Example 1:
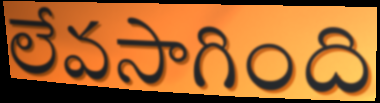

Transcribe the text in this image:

లేవసాగింది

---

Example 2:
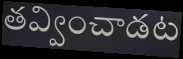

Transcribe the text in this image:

తవ్వించాడట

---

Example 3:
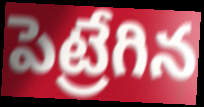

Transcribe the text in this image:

పెట్రేగిన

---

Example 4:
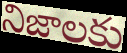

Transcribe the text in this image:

నిజాలకు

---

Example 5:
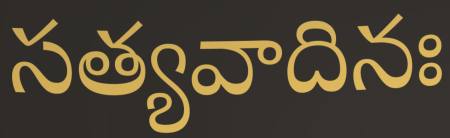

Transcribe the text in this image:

సత్యవాదినః